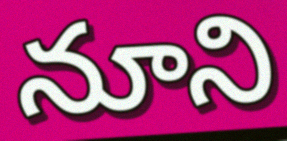
నూని